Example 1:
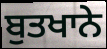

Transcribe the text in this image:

ਬੁਤਖਾਨੇ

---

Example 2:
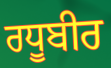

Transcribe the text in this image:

ਰਧੂਬੀਰ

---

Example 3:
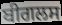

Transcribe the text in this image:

ਬੀਗਲਸ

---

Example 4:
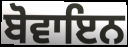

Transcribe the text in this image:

ਬੋਵਾਇਨ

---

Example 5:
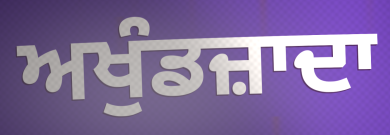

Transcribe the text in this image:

ਅਖੁੰਡਜ਼ਾਦਾ